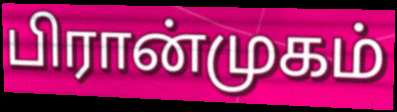
பிரான்முகம்